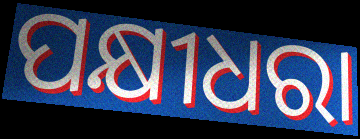
ପକ୍ଷୀଧରା